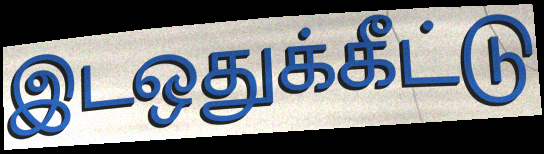
இடஒதுக்கீட்டு